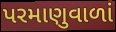
પરમાણુવાળાં